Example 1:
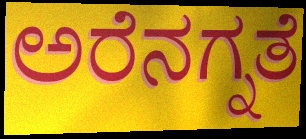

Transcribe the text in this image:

ಅರೆನಗ್ನತೆ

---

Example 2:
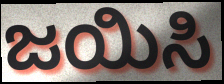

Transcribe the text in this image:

ಜಯಿಸಿ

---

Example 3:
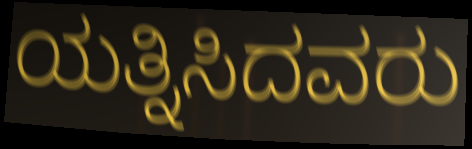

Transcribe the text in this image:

ಯತ್ನಿಸಿದವರು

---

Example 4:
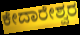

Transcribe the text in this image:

ಕೇದಾರೇಶ್ವರ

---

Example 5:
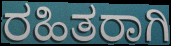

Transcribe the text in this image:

ರಹಿತರಾಗಿ